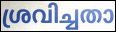
ശ്രവിച്ചതാ